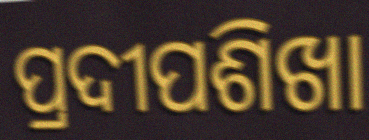
ପ୍ରଦୀପଶିଖା